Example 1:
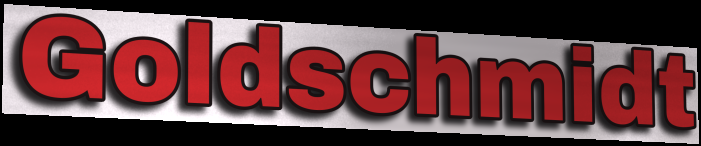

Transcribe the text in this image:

Goldschmidt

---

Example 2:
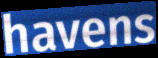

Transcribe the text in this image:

havens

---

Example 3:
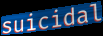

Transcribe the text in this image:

suicidal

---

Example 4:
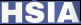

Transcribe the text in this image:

HSIA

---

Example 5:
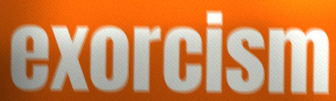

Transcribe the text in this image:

exorcism